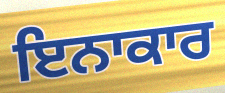
ਇਨਾਕਾਰ